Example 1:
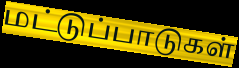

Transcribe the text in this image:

மட்டுப்பாடுகள்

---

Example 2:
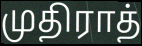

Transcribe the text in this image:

முதிராத்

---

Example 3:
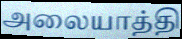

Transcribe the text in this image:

அலையாத்தி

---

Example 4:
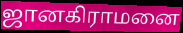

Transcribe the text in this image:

ஜானகிராமனை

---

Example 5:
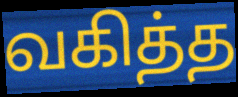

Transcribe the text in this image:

வகித்த